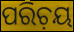
ପରିଚ଼ୟ